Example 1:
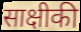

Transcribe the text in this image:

साक्षीकी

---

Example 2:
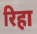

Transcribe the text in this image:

रिहा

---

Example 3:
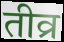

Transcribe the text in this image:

तीव्र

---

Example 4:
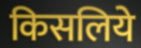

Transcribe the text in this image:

किसलिये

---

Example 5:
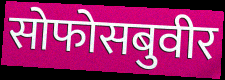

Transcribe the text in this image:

सोफोसबुवीर